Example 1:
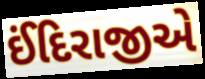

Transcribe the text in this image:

ઈંદિરાજીએ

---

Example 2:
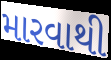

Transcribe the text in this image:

મારવાથી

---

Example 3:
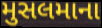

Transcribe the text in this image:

મુસલમાના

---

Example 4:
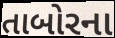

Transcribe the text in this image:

તાબોરના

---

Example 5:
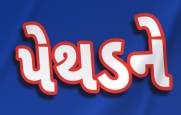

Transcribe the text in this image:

પેથડને